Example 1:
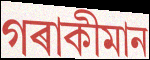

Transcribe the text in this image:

গৰাকীমান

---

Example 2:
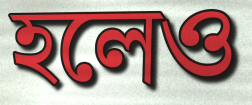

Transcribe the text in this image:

হলেও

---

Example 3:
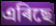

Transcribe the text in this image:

এৰিছে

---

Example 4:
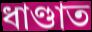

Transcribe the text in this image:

ধাণ্ডাত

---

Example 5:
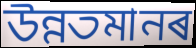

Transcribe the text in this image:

উন্নতমানৰ